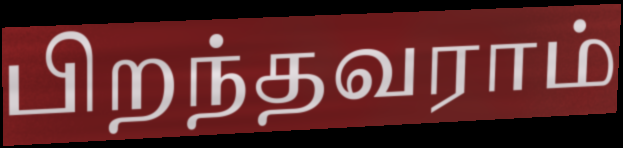
பிறந்தவராம்